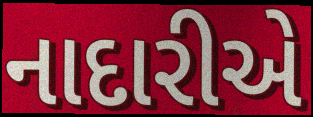
નાદારીએ